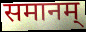
समानम्